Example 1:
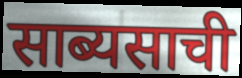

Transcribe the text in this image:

साब्यसाची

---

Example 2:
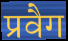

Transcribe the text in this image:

प्रवैग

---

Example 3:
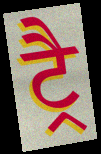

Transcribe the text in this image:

ट्रै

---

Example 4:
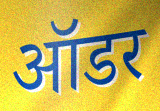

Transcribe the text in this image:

ऑडर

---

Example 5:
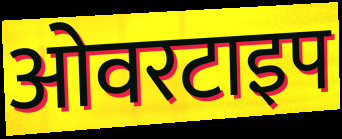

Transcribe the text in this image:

ओवरटाइप